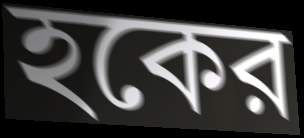
হকের